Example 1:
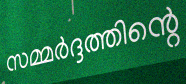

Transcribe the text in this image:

സമ്മർദ്ദത്തിന്റെ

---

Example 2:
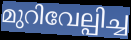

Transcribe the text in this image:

മുറിവേല്പിച്ച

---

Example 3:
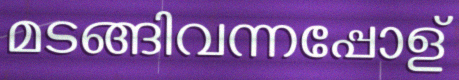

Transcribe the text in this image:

മടങ്ങിവന്നപ്പോള്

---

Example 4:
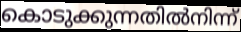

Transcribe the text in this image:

കൊടുക്കുന്നതിൽനിന്ന്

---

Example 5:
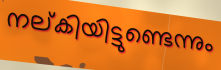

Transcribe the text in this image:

നല്കിയിട്ടുണ്ടെന്നും